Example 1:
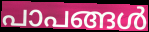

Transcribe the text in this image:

പാപങ്ങൾ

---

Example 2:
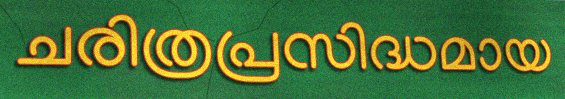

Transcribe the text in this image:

ചരിത്രപ്രസിദ്ധമായ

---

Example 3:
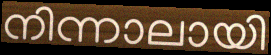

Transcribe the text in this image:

നിന്നാലായി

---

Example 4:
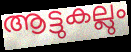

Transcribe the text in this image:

ആട്ടുകല്ലും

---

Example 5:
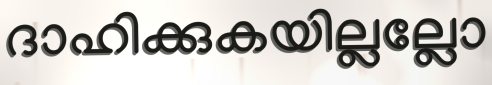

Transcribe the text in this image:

ദാഹിക്കുകയില്ലല്ലോ